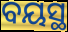
ବୟସ୍ଥ